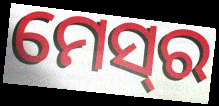
ମେସ୍‌ର